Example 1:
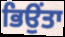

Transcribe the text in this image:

ਭਿਉਂਤਾ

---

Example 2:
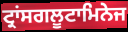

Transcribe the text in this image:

ਟ੍ਰਾਂਸਗਲੂਟਾਮਿਨੇਜ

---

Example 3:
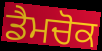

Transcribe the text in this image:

ਡੈਮਚੋਕ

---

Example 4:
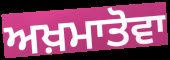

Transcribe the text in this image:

ਅਖ਼ਮਾਤੋਵਾ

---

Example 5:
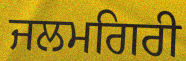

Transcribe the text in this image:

ਜਲਮਗਿਰੀ